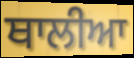
ਥਾਲੀਆ